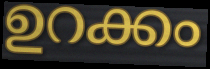
ഉറക്കം